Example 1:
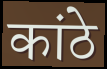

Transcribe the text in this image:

कांठे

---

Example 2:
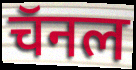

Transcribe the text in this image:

चॅनल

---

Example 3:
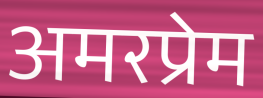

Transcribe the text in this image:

अमरप्रेम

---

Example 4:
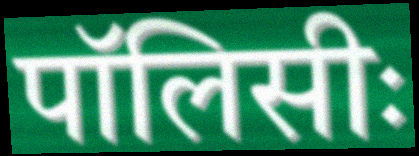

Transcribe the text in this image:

पॉलिसीः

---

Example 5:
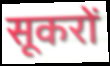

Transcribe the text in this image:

सूकरों